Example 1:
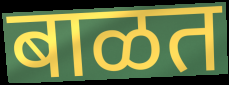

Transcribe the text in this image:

बाळत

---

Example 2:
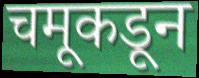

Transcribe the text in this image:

चमूकडून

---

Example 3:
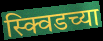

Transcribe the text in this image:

स्क्विडच्या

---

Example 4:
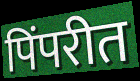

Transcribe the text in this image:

पिंपरीत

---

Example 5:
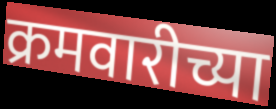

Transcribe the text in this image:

क्रमवारीच्या